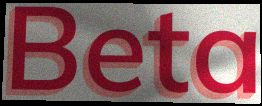
Beta